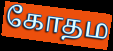
கோதம